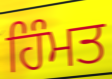
ਹਿੰਮਤ